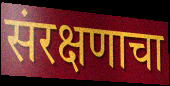
संरक्षणाचा